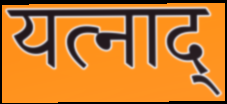
यत्नाद्